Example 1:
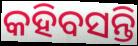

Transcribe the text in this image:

କହିବସନ୍ତି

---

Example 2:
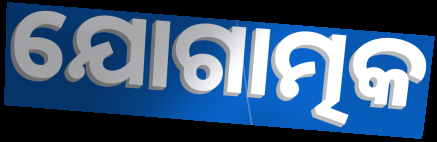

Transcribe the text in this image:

ଯୋଗାତ୍ମକ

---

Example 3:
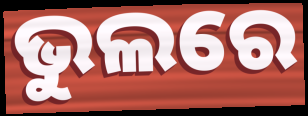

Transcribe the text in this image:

ଭୁଲରେ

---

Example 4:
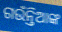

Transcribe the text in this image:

ଗଉଁନ୍ତିଆଙ୍କ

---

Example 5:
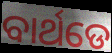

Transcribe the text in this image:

ବାର୍ଥଡେ